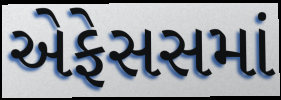
એફેસસમાં